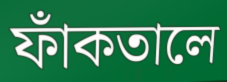
ফাঁকতালে